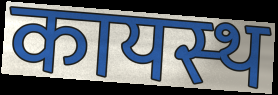
कायस्थ